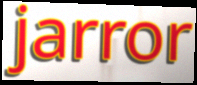
jarror